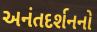
અનંતદર્શનનો